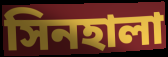
সিনহালা